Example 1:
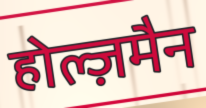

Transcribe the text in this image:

होल्ज़मैन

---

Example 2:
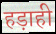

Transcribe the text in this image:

हड़ाही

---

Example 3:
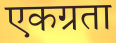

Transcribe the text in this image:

एकग्रता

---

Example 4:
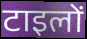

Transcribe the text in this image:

टाइलों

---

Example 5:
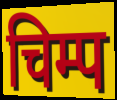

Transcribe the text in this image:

चिम्प